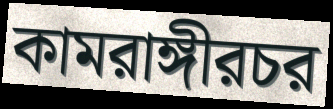
কামরাঙ্গীরচর